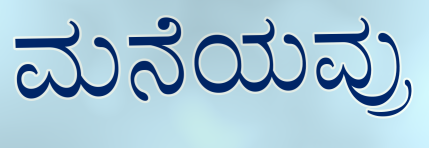
ಮನೆಯವ್ರು